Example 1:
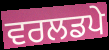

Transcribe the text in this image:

ਵਰਲਡਪੇ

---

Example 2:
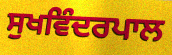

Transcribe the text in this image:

ਸੁਖਵਿੰਦਰਪਾਲ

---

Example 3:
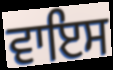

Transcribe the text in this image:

ਵਾਇਸ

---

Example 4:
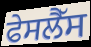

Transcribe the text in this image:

ਫੇਸਲੈੱਸ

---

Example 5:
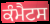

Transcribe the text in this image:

ਕੰਮੈਟਸ